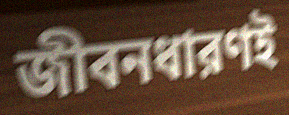
জীবনধারণই